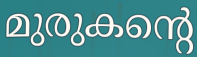
മുരുകന്റെ